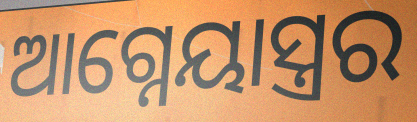
ଆଗ୍ନେୟାସ୍ତ୍ରର